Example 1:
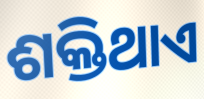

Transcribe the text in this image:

ଶକ୍ତିଥାଏ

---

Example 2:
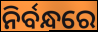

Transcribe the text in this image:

ନିର୍ବନ୍ଧରେ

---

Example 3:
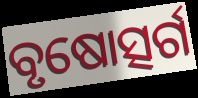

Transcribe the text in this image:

ବୃଷୋତ୍ସର୍ଗ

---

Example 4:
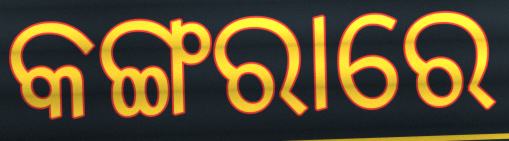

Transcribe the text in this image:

କଙ୍ଗରାରେ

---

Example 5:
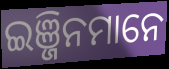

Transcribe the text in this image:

ଇଞ୍ଜିନମାନେ